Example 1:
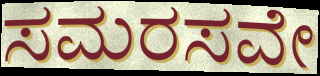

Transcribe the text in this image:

ಸಮರಸವೇ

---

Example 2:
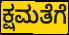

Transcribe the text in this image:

ಕ್ಷಮತೆಗೆ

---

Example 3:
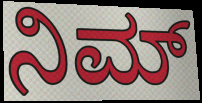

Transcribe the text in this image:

ನಿಮ್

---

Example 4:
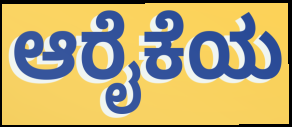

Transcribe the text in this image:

ಆರೈಕೆಯ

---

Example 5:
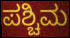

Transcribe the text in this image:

ಪಶ್ಚಿಮ